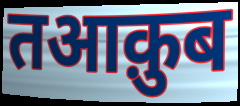
तआक़ुब